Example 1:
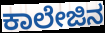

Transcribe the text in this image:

ಕಾಲೇಜಿನ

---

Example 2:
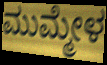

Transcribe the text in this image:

ಮುಮ್ಮೇಳ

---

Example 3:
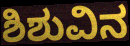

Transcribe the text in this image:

ಶಿಶುವಿನ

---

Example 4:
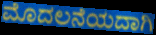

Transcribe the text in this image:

ಮೊದಲನೆಯದಾಗಿ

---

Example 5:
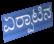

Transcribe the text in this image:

ಏರ‍್ಪಾಟಿನ